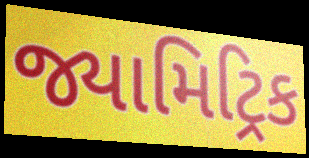
જ્યામિટ્રિક